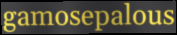
gamosepalous